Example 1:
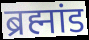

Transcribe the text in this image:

ब्रह्मांड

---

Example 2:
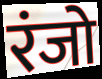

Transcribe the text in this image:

रंजो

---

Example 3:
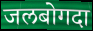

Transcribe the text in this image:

जलबोगदा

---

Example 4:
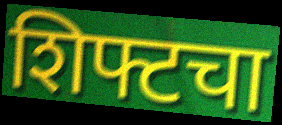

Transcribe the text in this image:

शिफ्टचा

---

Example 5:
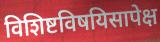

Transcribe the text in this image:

विशिष्टविषयिसापेक्ष